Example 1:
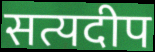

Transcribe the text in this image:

सत्यदीप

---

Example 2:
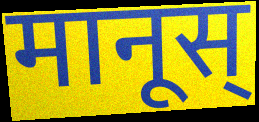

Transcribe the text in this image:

मानूस्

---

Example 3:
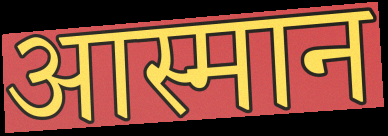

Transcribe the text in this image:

आस्मान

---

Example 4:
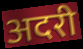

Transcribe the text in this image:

अदरी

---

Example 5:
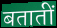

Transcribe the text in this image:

बतातीं